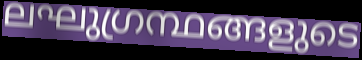
ലഘുഗ്രന്ഥങ്ങളുടെ